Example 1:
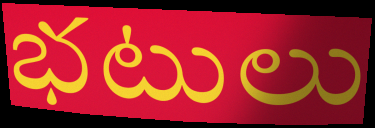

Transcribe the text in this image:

భటులు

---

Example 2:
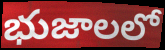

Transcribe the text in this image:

భుజాలలో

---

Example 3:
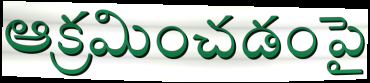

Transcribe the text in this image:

ఆక్రమించడంపై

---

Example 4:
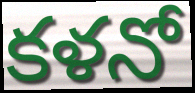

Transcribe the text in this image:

కళనో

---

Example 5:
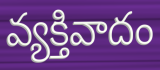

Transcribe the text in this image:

వ్యక్తివాదం